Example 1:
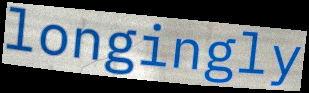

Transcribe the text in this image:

longingly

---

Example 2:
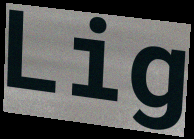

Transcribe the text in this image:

Lig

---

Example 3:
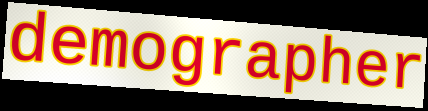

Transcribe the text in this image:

demographer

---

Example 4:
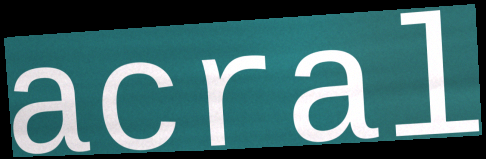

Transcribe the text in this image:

acral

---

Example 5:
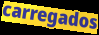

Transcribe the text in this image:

carregados